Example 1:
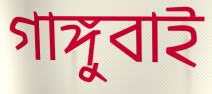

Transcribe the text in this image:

গাঙ্গুবাই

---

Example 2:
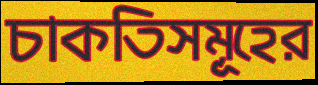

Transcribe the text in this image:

চাকতিসমূহের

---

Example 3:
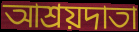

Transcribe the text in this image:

আশ্রয়দাতা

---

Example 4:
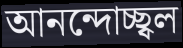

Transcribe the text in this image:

আনন্দোচ্ছ্বল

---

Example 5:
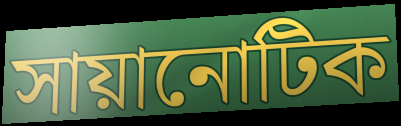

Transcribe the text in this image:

সায়ানোটিক